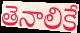
తెనాలికే